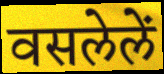
वसलेलें